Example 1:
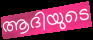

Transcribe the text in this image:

ആദിയുടെ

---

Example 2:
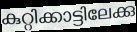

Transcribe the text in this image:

കുറ്റിക്കാട്ടിലേക്കു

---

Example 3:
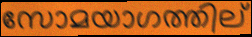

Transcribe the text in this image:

സോമയാഗത്തില്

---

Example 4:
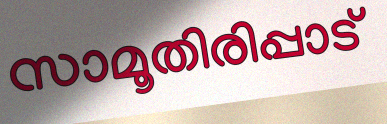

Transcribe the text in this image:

സാമൂതിരിപ്പാട്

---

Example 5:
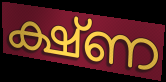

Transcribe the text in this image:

ക്ഷ്ണ